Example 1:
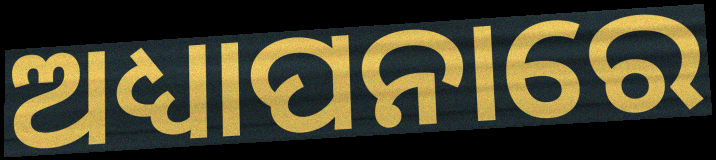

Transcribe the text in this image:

ଅଧ୍ୟାପନାରେ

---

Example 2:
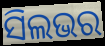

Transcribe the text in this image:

ସିଲଭର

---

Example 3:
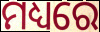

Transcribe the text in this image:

ମଧ୍ୟରେ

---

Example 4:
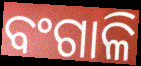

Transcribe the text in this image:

ବଂଗାଳି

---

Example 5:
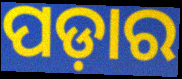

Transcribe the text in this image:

ପଡ଼ାର